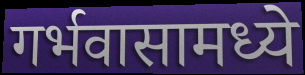
गर्भवासामध्ये